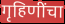
गृहिणींचा